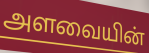
அளவையின்